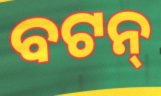
ବଟନ୍